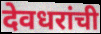
देवधरांची